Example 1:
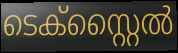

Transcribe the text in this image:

ടെക്സ്റ്റൈൽ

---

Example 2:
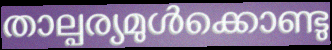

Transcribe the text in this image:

താല്പര്യമുൾക്കൊണ്ടു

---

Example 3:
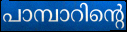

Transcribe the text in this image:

പാമ്പാറിന്റെ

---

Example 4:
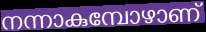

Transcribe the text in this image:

നന്നാകുമ്പോഴാണ്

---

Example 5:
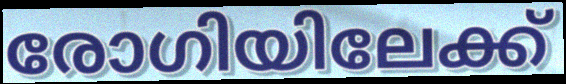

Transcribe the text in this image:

രോഗിയിലേക്ക്